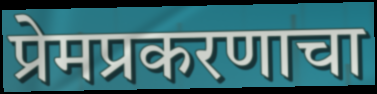
प्रेमप्रकरणाचा